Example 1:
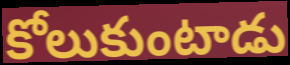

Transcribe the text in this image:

కోలుకుంటాడు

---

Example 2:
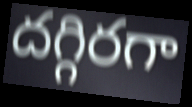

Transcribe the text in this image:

దగ్గిరగా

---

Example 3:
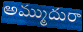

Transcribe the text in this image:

అమ్ముదురా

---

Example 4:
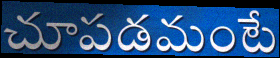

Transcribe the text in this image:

చూపడమంటే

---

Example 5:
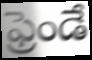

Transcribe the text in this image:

ఫ్రెండే